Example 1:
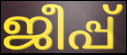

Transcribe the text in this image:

ജീപ്പ്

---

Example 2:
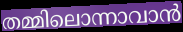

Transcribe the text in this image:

തമ്മിലൊന്നാവാൻ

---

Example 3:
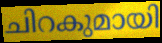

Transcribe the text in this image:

ചിറകുമായി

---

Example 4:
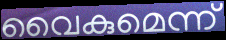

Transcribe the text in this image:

വൈകുമെന്ന്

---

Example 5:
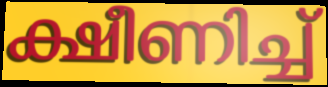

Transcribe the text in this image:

ക്ഷീണിച്ച്